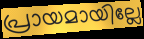
പ്രായമായില്ലേ